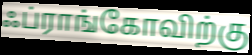
ஃப்ராங்கோவிற்கு